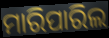
ମାରିପାରିଲ